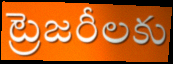
ట్రెజరీలకు